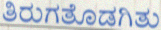
ತಿರುಗತೊಡಗಿತು